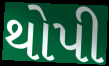
થોપી